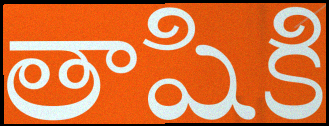
తాషికి